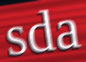
sda